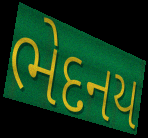
ભેદનય